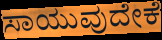
ಸಾಯುವುದೇಕೆ